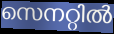
സെനറ്റിൽ